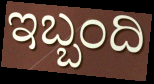
ಇಬ್ಬಂದಿ